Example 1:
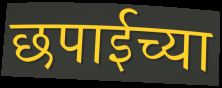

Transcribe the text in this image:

छपाईच्या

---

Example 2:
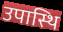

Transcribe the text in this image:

उपास्थि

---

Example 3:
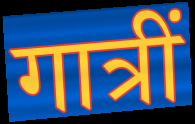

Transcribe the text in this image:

गात्रीं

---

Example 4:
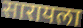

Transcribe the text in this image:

सारायला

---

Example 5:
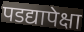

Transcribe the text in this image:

पडद्यापेक्षा